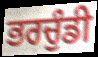
ਭਰਚੁੰਡੀ